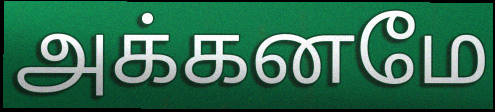
அக்கனமே